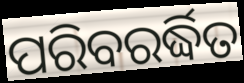
ପରିବରର୍ଦ୍ଧିତ